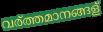
വര്ത്തമാനങ്ങള്